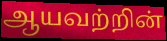
ஆயவற்றின்